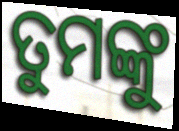
ତୁମଙ୍କୁ